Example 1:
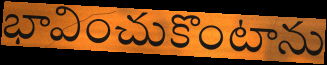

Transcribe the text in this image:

భావించుకొంటాను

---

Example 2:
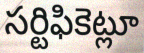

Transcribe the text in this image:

సర్టిఫికెట్లూ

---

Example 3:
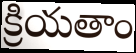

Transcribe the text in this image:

క్రియతాం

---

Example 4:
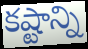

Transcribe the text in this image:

కష్టాన్ని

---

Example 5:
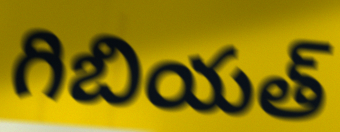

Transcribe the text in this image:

గిబియత్